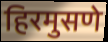
हिरमुसणे